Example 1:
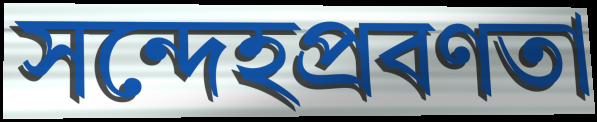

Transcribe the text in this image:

সন্দেহপ্রবণতা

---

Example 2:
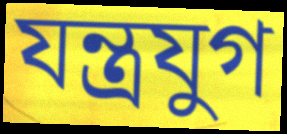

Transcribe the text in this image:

যন্ত্রযুগ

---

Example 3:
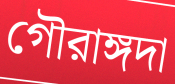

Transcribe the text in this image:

গৌরাঙ্গদা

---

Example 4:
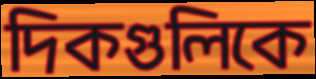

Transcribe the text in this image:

দিকগুলিকে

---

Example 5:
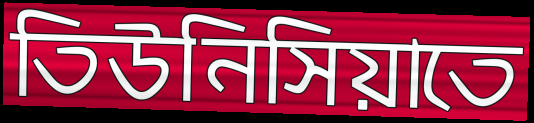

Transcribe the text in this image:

তিউনিসিয়াতে